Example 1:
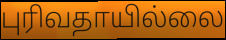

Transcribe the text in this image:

புரிவதாயில்லை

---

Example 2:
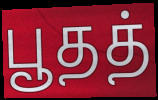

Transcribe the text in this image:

பூதத்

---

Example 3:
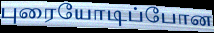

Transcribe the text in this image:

புரையோடிப்போன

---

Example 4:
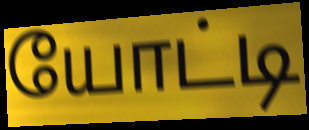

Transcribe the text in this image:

யோட்டி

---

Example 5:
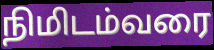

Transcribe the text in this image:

நிமிடம்வரை